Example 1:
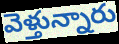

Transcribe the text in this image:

వెళ్తున్నారు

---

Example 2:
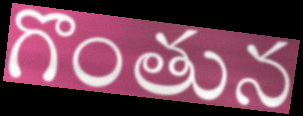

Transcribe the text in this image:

గొంతున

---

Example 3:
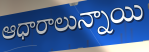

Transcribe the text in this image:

ఆధారాలున్నాయి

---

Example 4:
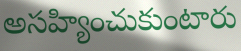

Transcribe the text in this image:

అసహ్యించుకుంటారు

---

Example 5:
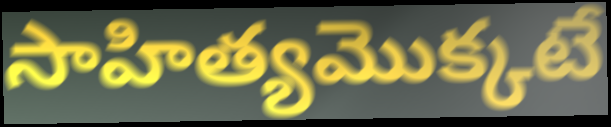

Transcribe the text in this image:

సాహిత్యమొక్కటే